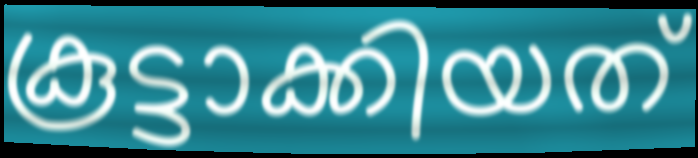
കൂട്ടാക്കിയത്